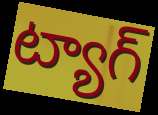
ట్యాగ్